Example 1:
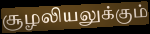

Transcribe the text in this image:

சூழலியலுக்கும்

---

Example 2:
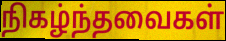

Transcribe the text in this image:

நிகழ்ந்தவைகள்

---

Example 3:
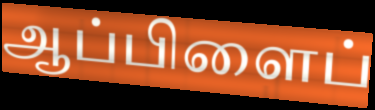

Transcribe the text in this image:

ஆப்பிளைப்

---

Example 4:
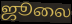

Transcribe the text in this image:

ஜூலை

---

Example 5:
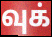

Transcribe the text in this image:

வுக்